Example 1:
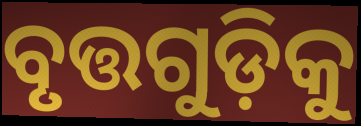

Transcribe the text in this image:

ବୃତ୍ତଗୁଡ଼ିକୁ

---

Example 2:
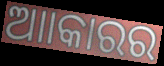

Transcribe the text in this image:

ଆାକାରର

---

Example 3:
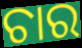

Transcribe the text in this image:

ଚାର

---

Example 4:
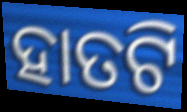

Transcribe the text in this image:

ହାତଟି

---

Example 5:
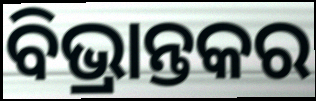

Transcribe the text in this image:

ବିଭ୍ରାନ୍ତକର